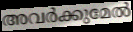
അവർക്കുമേൽ